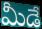
మీడే